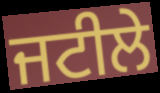
ਜਟੀਲੇ